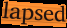
lapsed